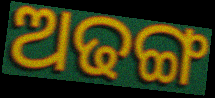
ଅଢଙ୍ଗ